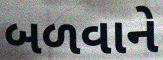
બળવાને